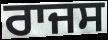
ਰਾਜਸ